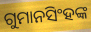
ଗୁମାନସିଂହଙ୍କ